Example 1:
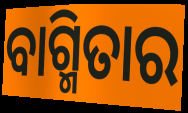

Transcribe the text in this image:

ବାଗ୍ମିତାର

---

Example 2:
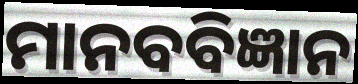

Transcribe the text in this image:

ମାନବବିଜ୍ଞାନ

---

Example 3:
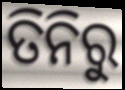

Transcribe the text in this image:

ତିନିରୁ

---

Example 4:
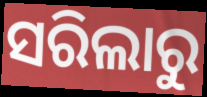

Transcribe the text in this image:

ସରିଲାରୁ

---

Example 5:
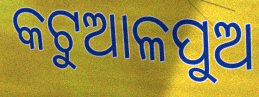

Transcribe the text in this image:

କଟୁଆଳପୁଅ